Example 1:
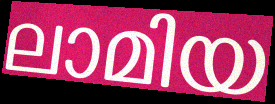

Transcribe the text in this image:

ലാമിയ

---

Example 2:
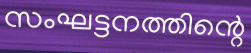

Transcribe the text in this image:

സംഘട്ടനത്തിന്റെ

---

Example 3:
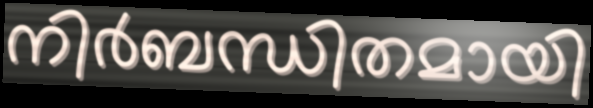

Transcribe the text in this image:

നിർബന്ധിതമായി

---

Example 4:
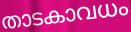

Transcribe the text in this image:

താടകാവധം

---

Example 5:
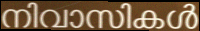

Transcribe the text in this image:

നിവാസികൾ